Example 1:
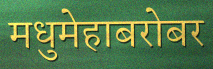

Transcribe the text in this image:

मधुमेहाबरोबर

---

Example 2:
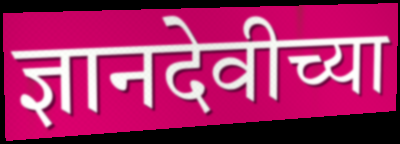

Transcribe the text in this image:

ज्ञानदेवीच्या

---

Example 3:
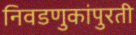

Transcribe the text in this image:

निवडणुकांपुरती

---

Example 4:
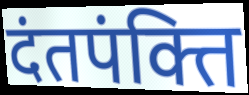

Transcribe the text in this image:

दंतपंक्ति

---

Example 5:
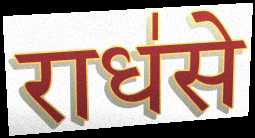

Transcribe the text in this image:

राध॑से